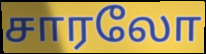
சாரலோ